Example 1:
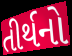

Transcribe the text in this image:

તીર્થનો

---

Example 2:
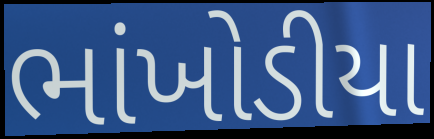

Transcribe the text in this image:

ભાંખોડીયા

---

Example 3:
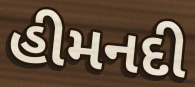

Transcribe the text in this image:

હીમનદી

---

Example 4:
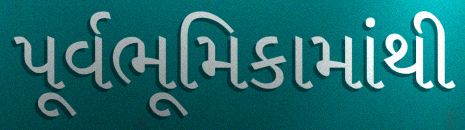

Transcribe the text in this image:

પૂર્વભૂમિકામાંથી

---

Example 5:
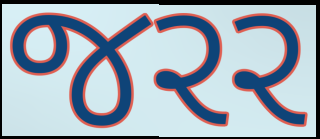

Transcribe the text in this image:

જરર